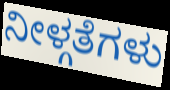
ನೀಳ್ಗತೆಗಳು